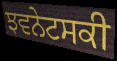
ਝਵਨੇਟਸਕੀ